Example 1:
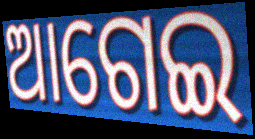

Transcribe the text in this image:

ଆଗେଇ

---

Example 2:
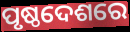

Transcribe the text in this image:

ପୃଷ୍ଠଦେଶରେ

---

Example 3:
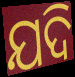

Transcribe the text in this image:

ଯଦି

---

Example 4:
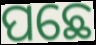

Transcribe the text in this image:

ପଛେ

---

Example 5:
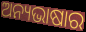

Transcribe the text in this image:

ଅନ୍ୟଭାଷାର